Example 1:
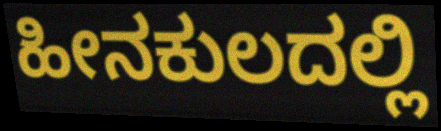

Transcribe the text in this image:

ಹೀನಕುಲದಲ್ಲಿ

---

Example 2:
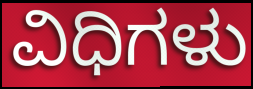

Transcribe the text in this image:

ವಿಧಿಗಳು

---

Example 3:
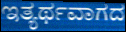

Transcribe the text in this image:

ಇತ್ಯರ್ಥವಾಗದ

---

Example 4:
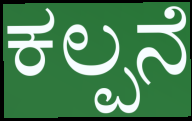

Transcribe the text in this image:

ಕಲ್ಪನೆ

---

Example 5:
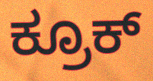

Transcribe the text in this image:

ಕ್ರೂಕ್